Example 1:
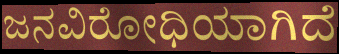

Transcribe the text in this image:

ಜನವಿರೋಧಿಯಾಗಿದೆ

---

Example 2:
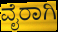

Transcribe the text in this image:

ವೈರಾಗಿ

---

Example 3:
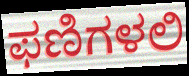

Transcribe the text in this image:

ಫಣಿಗಳಲಿ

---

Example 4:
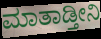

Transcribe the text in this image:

ಮಾತಾಡ್ತೀನಿ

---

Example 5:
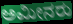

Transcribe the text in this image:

ಅಮೀನರು